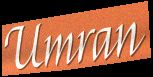
Umran